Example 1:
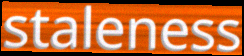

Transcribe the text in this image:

staleness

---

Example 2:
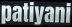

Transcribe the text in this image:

patiyani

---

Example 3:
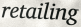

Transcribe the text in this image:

retailing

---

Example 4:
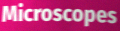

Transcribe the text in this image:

Microscopes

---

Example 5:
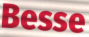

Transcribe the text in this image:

Besse